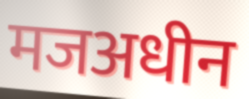
मजअधीन